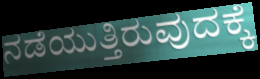
ನಡೆಯುತ್ತಿರುವುದಕ್ಕೆ